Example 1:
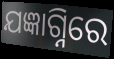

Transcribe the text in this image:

ଯଜ୍ଞାଗ୍ନିରେ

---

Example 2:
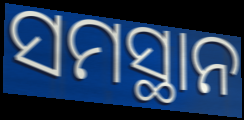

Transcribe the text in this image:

ସମସ୍ଥାନ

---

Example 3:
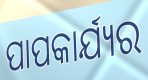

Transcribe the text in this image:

ପାପକାର୍ଯ୍ୟର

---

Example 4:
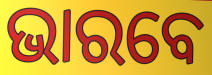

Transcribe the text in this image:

ଭାରବେ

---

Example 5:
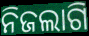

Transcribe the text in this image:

ନିଜଲାଗି